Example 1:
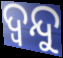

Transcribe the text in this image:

ଦ୍ଵନ୍ଦୁ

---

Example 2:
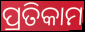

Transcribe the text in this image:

ପ୍ରତିକାମ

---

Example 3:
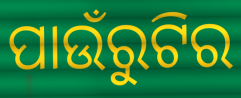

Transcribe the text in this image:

ପାଉଁରୁଟିର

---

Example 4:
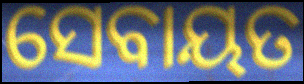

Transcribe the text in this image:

ସେବାୟତ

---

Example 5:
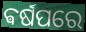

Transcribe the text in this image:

ଵର୍ଷପରେ